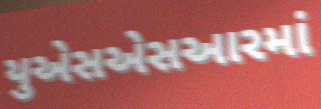
યુએસએસઆરમાં